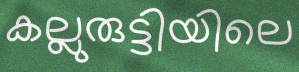
കല്ലുരുട്ടിയിലെ